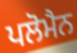
ਪਲੋਮੈਨ